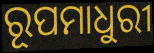
ରୂପମାଧୁରୀ